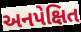
અનપેક્ષિત